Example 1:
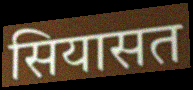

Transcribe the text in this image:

सियासत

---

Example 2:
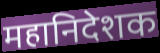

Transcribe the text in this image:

महानिदेशक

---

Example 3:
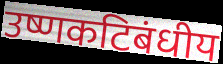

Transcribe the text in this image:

उष्णकटिबंधीय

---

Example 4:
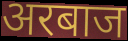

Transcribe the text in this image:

अरबाज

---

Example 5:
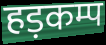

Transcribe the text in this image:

हड़कम्प